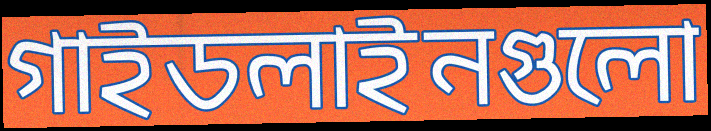
গাইডলাইনগুলো